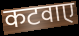
कटवाए